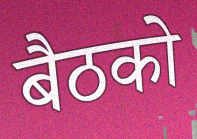
बैठको